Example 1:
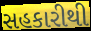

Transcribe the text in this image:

સહકારીથી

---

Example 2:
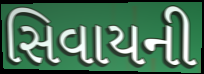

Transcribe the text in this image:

સિવાયની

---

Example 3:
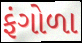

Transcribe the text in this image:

ફંગોળા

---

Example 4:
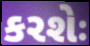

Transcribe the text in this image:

કરશેઃ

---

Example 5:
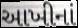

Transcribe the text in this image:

આખીનાં